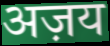
अज़य